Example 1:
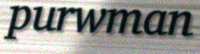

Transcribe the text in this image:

purwman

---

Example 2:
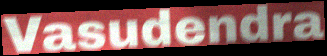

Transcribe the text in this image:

Vasudendra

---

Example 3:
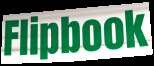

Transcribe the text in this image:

Flipbook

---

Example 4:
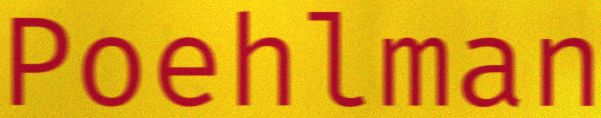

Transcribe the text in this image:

Poehlman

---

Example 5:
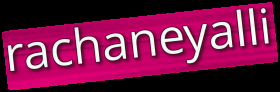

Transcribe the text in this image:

rachaneyalli